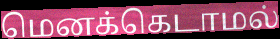
மெனக்கெடாமல்